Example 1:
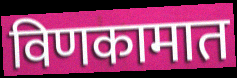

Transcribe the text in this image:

विणकामात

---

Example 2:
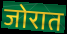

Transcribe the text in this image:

जोरात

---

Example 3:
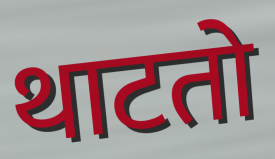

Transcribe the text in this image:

थाटतो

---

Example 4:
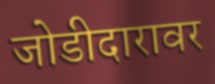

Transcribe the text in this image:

जोडीदारावर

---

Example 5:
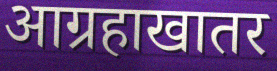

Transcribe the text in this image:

आग्रहाखातर